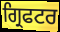
ਗ੍ਰਿਫਟਰ